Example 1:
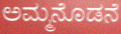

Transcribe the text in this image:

ಅಮ್ಮನೊಡನೆ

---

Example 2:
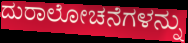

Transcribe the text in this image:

ದುರಾಲೋಚನೆಗಳನ್ನು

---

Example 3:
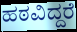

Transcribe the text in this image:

ಹಠವಿದ್ದರೆ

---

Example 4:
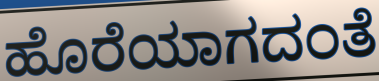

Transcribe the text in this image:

ಹೊರೆಯಾಗದಂತೆ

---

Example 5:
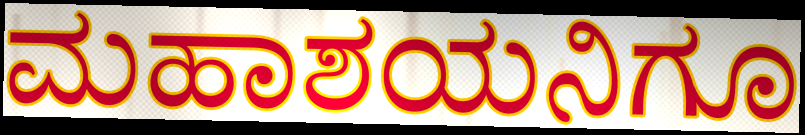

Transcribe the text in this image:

ಮಹಾಶಯನಿಗೂ